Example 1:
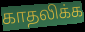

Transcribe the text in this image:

காதலிக்க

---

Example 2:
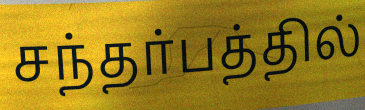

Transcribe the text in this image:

சந்தர்பத்தில்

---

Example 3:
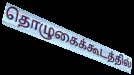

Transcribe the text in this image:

தொழுகைக்கூடத்தில்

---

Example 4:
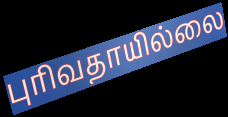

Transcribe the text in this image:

புரிவதாயில்லை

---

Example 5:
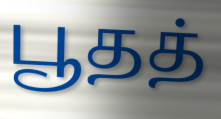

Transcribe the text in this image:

பூதத்